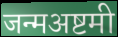
जन्मअष्टमी